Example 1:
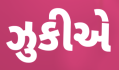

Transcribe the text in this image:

ઝુકીએ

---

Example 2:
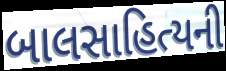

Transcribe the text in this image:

બાલસાહિત્યની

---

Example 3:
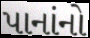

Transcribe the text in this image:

પાનાંનો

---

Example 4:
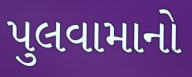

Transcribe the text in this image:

પુલવામાનો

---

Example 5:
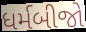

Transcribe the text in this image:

ધર્મબીજો